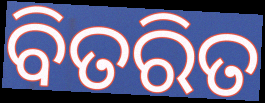
ବିତରିତ